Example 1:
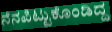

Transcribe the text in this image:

ನೆನಪಿಟ್ಟುಕೊಂಡಿದ್ದ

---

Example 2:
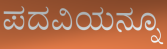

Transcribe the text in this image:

ಪದವಿಯನ್ನೂ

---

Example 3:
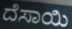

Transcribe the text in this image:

ದೆಸಾಯಿ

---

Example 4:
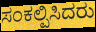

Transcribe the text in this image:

ಸಂಕಲ್ಪಿಸಿದರು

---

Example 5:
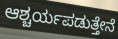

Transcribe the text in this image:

ಆಶ್ಚರ್ಯಪಡುತ್ತೇನೆ